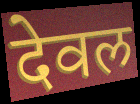
देवल